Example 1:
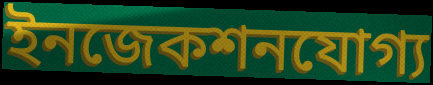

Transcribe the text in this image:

ইনজেকশনযোগ্য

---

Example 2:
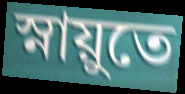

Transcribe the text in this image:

স্নায়ুতে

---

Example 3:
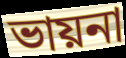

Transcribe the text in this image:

ভায়না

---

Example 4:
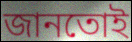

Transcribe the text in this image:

জানতোই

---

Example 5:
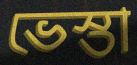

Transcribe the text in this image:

ভেস্তা